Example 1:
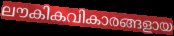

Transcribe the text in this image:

ലൗകികവികാരങ്ങളായ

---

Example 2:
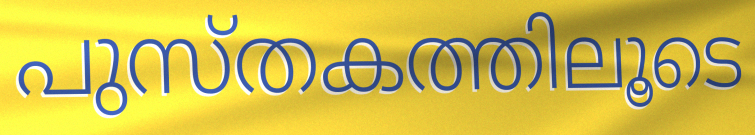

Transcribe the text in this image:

പുസ്തകത്തിലൂടെ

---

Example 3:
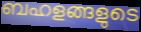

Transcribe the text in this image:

ബഹളങ്ങളുടെ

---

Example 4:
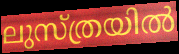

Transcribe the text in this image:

ലുസ്ത്രയിൽ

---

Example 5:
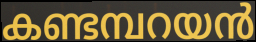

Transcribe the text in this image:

കണ്ടമ്പറയൻ